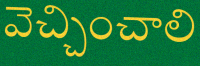
వెచ్చించాలి